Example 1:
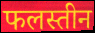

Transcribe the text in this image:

फलस्तीन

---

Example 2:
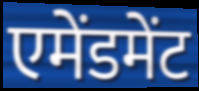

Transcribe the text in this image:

एमेंडमेंट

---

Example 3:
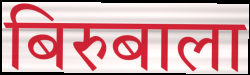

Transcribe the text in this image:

बिरुबाला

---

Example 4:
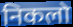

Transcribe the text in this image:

निकलो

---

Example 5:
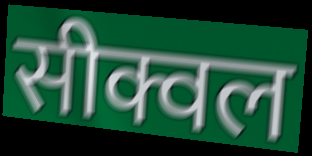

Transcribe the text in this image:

सीक्वल